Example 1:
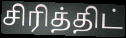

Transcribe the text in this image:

சிரித்திட்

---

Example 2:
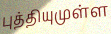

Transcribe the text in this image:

புத்தியுமுள்ள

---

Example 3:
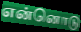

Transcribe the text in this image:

என்னொடு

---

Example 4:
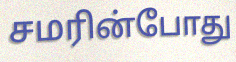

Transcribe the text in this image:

சமரின்போது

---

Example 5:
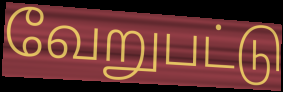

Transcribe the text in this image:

வேறுபட்டு